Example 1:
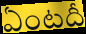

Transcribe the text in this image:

ఏంటదీ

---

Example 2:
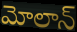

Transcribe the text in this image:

మోలాన్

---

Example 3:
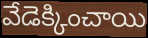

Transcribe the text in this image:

వేడెక్కించాయి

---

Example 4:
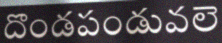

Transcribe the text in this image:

దొండపండువలె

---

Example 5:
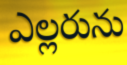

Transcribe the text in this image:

ఎల్లరును